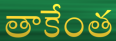
తాకేంత